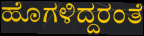
ಹೊಗಳಿದ್ದರಂತೆ